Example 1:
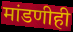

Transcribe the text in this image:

मांडणीही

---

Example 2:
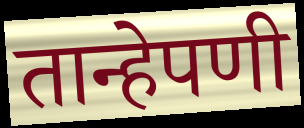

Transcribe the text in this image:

तान्हेपणी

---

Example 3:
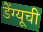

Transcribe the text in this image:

डेंग्यूची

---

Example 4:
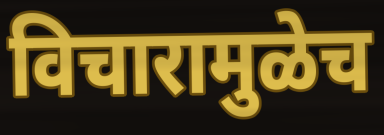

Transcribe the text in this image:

विचारामुळेच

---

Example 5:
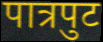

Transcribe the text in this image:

पात्रपुट